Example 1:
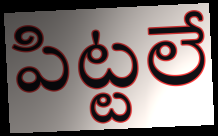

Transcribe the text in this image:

పిట్టలే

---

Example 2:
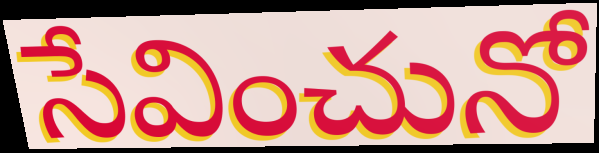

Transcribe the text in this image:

సేవించునో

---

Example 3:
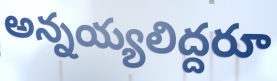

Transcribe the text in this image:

అన్నయ్యలిద్దరూ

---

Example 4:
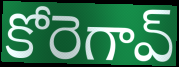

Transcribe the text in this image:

కోరెగావ్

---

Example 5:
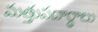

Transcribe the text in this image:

మత్తుపదార్ధాలు